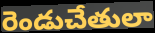
రెండుచేతులా